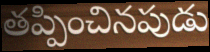
తప్పించినపుడు